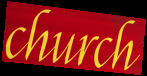
church